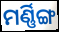
ମର୍ଣ୍ଣିଙ୍ଗ